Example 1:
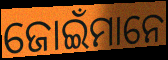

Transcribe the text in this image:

ଜୋଇଁମାନେ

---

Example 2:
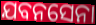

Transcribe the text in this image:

ଯବନସେନା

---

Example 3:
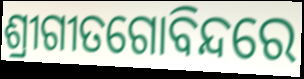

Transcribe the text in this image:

ଶ୍ରୀଗୀତଗୋବିନ୍ଦରେ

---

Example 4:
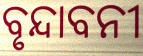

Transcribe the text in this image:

ବୃନ୍ଦାବନୀ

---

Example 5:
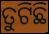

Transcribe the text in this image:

ତୁଟିଛି